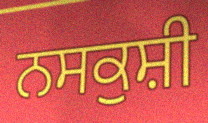
ਨਸਕੁਸ਼ੀ